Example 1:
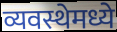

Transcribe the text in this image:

व्यवस्थेमध्ये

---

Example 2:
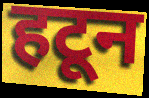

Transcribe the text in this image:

हटून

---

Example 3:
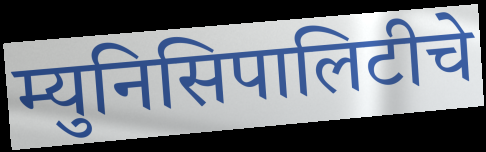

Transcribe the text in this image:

म्युनिसिपालिटीचे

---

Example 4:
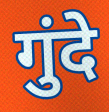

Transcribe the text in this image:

गुंदे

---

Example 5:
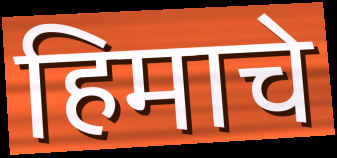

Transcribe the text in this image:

हिमाचे